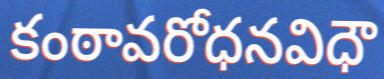
కంఠావరోధనవిధౌ